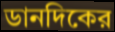
ডানদিকের